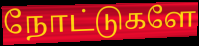
நோட்டுகளே